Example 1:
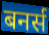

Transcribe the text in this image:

बनर्स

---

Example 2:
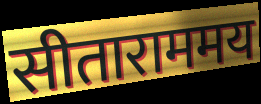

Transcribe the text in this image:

सीताराममय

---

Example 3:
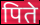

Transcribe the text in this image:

पिते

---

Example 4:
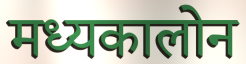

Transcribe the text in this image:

मध्यकालोन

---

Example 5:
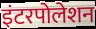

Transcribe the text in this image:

इंटरपोलेशन